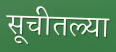
सूचीतल्या